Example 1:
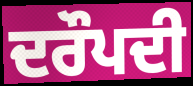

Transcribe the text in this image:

ਦਰੌਪਦੀ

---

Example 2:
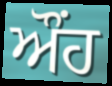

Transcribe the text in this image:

ਔਂਹ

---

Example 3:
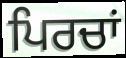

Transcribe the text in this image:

ਪਿਰਚਾਂ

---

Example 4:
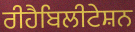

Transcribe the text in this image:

ਰੀਹੈਬਿਲੀਟੇਸ਼ਨ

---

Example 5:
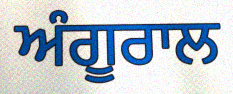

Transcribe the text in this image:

ਅੰਗੂਰਾਲ